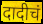
दादीचं